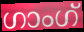
ഗാംഗ്